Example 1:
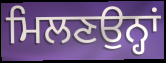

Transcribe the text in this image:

ਮਿਲਣਉਨ੍ਹਾਂ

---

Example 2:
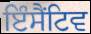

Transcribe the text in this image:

ਇੰਸੈਂਟਿਵ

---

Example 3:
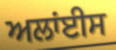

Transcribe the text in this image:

ਅਲਾਂਈਸ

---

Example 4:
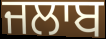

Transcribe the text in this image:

ਜਲਾਬ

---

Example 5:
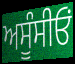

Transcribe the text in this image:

ਅਸੂੰਸੀਓਂ